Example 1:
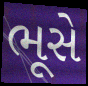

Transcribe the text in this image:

ભૂસે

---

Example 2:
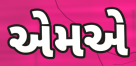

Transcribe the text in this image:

એમએ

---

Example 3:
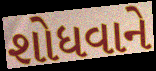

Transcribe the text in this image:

શોધવાને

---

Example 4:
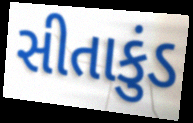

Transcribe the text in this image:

સીતાકુંડ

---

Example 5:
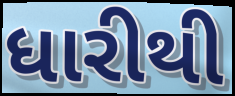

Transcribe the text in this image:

ધારીથી